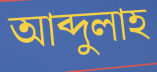
আব্দুলাহ